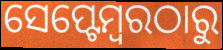
ସେପ୍ଟେମ୍ବରଠାରୁ